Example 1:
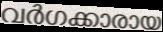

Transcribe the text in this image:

വർഗക്കാരായ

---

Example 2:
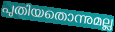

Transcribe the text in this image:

പുതിയതൊന്നുമല്ല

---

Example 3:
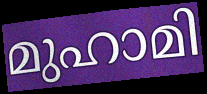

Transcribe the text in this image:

മുഹാമി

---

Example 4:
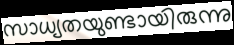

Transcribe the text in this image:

സാധ്യതയുണ്ടായിരുന്നു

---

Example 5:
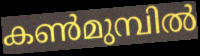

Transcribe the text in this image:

കൺമുമ്പിൽ